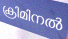
ക്രിമിനൽ